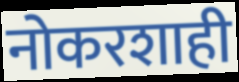
नोकरशाही